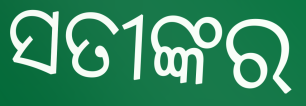
ସତୀଙ୍କର